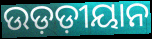
ଉଡ଼ଡ଼ୀୟାନ